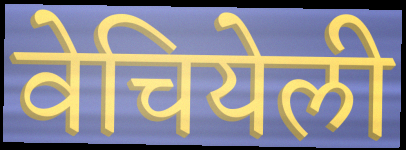
वेचियेली